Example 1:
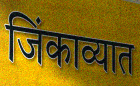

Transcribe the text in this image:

जिंकाव्यात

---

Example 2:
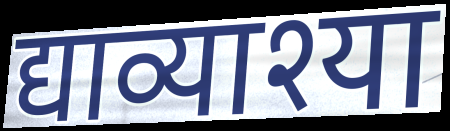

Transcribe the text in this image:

द्याव्याश्या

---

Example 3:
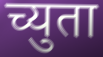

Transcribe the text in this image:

च्युता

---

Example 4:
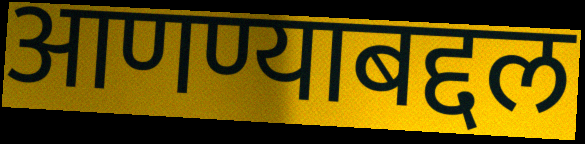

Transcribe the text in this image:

आणण्याबद्दल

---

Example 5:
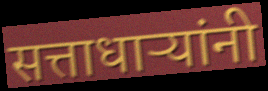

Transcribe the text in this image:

सत्ताधाऱ्यांनी